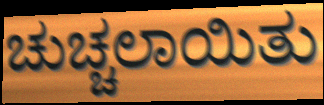
ಚುಚ್ಚಲಾಯಿತು